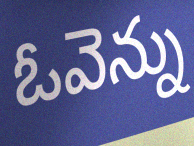
ఓవెన్ను